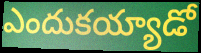
ఎందుకయ్యాడో